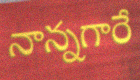
నాన్నగారే